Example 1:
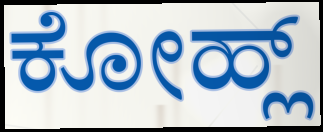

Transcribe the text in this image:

ಕೋಹ್ಲ್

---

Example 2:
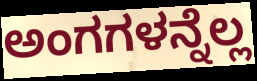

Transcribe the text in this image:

ಅಂಗಗಳನ್ನೆಲ್ಲ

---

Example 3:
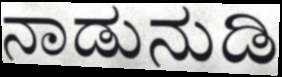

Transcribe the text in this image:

ನಾಡುನುಡಿ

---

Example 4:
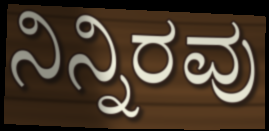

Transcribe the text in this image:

ನಿನ್ನಿರವು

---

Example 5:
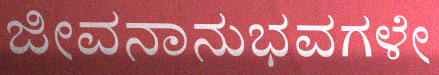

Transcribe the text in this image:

ಜೀವನಾನುಭವಗಳೇ